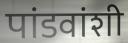
पांडवांशी